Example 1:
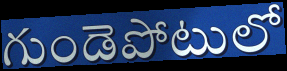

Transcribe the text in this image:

గుండెపోటులో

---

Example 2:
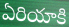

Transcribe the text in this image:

ఏరియాకి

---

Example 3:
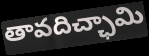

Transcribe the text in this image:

తావదిచ్ఛామి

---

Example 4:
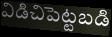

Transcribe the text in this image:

విడిచిపెట్టబడి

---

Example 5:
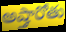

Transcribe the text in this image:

అష్తారోతు